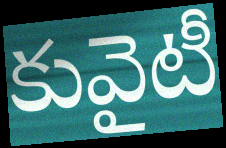
కువైటీ